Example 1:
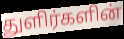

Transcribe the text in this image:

துளிர்களின்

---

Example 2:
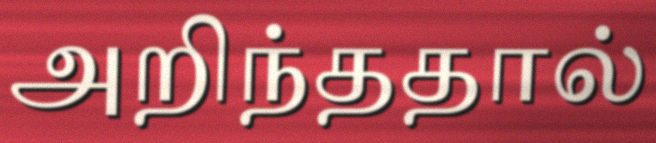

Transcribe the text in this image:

அறிந்ததால்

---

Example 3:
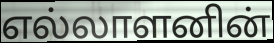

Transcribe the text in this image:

எல்லாளனின்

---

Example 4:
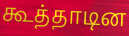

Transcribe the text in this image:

கூத்தாடின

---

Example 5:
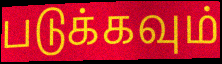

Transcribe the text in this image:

படுக்கவும்